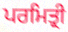
ਪਰਮਿਤ੍ਰੀ